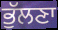
ਭੁੱਲਣਾ